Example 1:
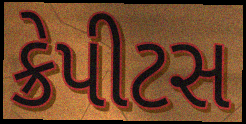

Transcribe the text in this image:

ક્રેપીટસ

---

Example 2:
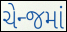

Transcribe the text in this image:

ચેન્જમાં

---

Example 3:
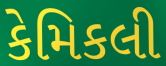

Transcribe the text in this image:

કેમિકલી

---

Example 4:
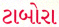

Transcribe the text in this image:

ટાબોરા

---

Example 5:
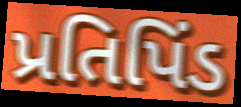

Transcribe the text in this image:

પ્રતિપિંડ